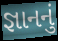
જ્ઞાનનું